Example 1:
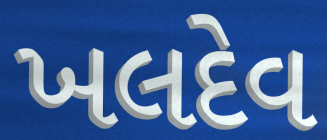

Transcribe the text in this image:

ખલદેવ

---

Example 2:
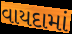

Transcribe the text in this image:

વાયદામાં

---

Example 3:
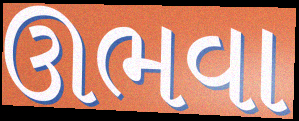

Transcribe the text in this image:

ઊભવા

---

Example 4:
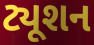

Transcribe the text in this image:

ટ્યૂશન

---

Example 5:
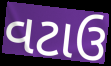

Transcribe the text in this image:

વટાઉ